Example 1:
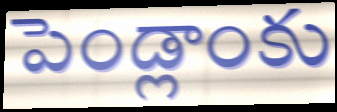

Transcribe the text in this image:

పెండ్లాంకు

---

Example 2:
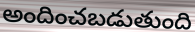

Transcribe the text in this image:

అందించబడుతుంది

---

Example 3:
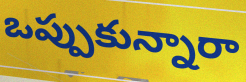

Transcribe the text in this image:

ఒప్పుకున్నారా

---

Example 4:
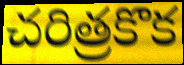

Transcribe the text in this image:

చరిత్రకొక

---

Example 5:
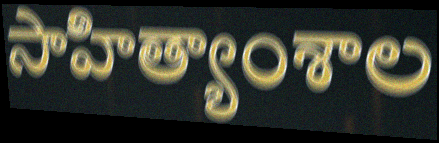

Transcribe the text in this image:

సాహిత్యాంశాల